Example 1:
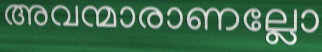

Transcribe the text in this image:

അവന്മാരാണല്ലോ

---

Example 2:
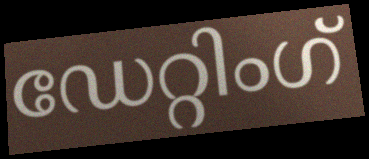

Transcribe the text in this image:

ഡേറ്റിംഗ്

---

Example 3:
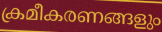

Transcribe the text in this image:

ക്രമീകരണങ്ങളും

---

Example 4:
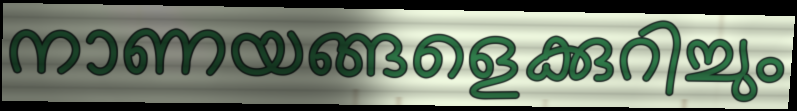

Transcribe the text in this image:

നാണയങ്ങളെക്കുറിച്ചും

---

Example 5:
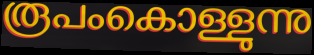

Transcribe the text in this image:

രൂപംകൊള്ളുന്നു